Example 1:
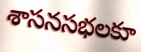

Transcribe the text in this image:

శాసనసభలకూ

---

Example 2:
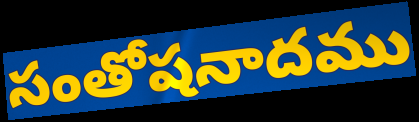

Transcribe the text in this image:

సంతోషనాదము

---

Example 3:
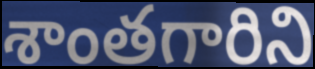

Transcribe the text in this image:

శాంతగారిని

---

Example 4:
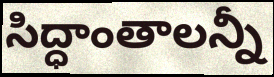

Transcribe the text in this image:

సిద్ధాంతాలన్నీ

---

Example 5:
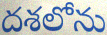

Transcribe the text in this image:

దశలోను